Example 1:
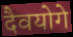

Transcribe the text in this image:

दैवयोगे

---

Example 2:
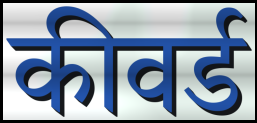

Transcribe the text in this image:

कीवर्ड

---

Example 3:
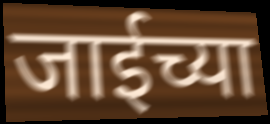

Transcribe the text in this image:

जाईच्या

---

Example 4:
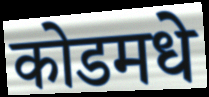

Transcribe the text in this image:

कोडमधे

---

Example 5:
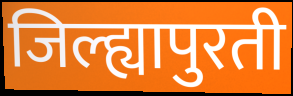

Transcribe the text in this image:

जिल्ह्यापुरती